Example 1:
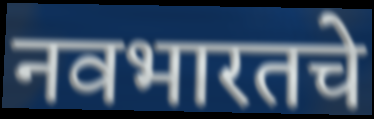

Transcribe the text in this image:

नवभारतचे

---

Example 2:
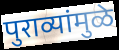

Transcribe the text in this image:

पुराव्यांमुळे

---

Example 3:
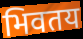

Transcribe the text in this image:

भिवतय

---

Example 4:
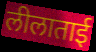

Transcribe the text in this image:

लीलाताई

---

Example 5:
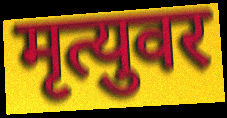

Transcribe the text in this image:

मृत्युवर